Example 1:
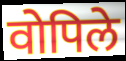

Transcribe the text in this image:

वोपिले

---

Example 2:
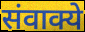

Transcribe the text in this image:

संवाक्ये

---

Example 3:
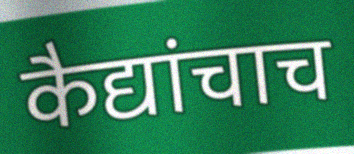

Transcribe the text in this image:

कैद्यांचाच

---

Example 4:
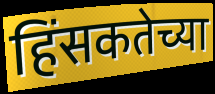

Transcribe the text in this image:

हिंसकतेच्या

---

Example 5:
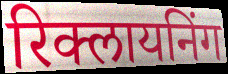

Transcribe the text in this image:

रिक्लायनिंग